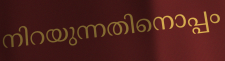
നിറയുന്നതിനൊപ്പം